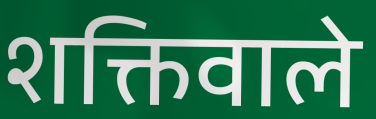
शक्तिवाले